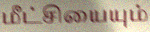
மீட்சியையும்